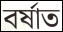
বৰ্ষাত